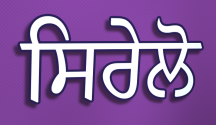
ਸਿਰੇਲੋ